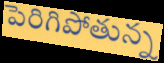
పెరిగిపోతున్న